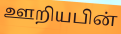
ஊறியபின்